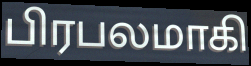
பிரபலமாகி